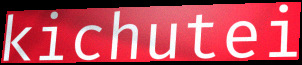
kichutei